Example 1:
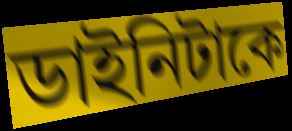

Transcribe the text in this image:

ডাইনিটাকে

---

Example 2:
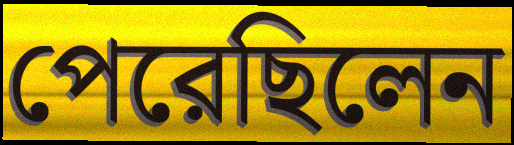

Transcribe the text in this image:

পেরেছিলেন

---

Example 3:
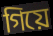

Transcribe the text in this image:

গিয়ে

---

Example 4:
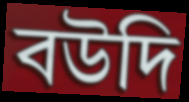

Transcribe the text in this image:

বউদি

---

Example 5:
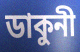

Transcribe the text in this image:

ডাকুনী